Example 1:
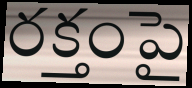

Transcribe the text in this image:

రక్తంపై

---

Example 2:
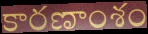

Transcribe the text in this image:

కారణాంశం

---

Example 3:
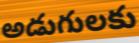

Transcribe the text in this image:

అడుగులకు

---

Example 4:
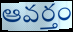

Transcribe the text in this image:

ఆవర్తం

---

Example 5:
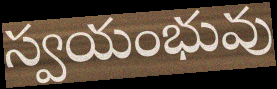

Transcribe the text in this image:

స్వయంభువు